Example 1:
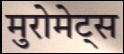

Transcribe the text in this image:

मुरोमेट्स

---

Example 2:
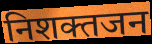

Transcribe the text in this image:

निशक्तजन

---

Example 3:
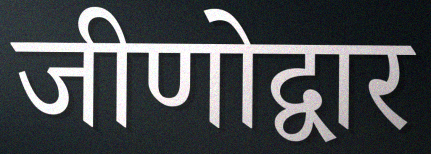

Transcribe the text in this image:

जीणोद्वार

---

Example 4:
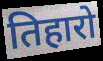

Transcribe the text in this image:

तिहारो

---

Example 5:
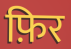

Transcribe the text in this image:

फ़िर